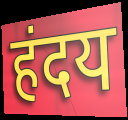
हंदय